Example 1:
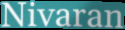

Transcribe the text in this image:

Nivaran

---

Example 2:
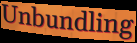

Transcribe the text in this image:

Unbundling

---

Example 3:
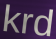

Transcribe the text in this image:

krd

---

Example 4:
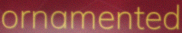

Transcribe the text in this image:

ornamented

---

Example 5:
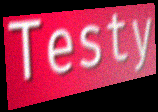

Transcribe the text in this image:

Testy